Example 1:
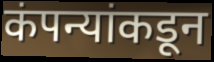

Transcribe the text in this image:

कंपन्यांकडून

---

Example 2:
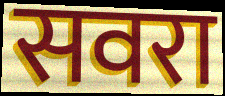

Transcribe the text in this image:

सवरा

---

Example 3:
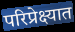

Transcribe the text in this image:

परिप्रेक्ष्यात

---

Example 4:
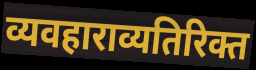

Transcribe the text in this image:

व्यवहाराव्यतिरिक्त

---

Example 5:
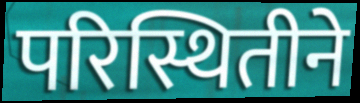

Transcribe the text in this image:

परिस्थितीने